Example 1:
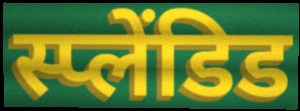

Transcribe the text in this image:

स्प्लेंडिड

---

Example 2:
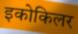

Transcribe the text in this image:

इकोकिलर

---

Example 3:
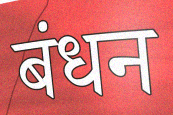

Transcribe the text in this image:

बंधन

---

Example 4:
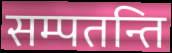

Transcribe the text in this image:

सम्पतन्ति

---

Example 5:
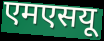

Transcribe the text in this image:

एमएसयू